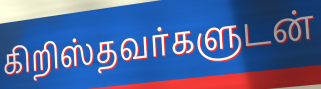
கிறிஸ்தவர்களுடன்